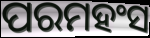
ପରମହଂସ